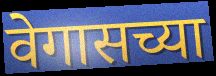
वेगासच्या